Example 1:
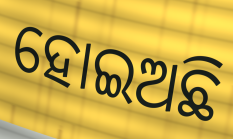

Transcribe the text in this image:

ହୋଇଅଛି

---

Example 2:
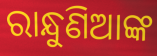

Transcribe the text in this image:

ରାନ୍ଧୁଣିଆଙ୍କ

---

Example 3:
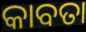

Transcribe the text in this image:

କାବତା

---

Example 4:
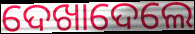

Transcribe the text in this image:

ଦେଖାଦେଲେ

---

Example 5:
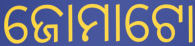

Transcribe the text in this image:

ଜୋମାଟୋ